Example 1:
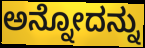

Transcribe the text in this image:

ಅನ್ನೋದನ್ನು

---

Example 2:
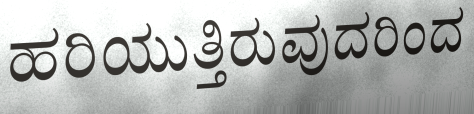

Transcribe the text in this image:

ಹರಿಯುತ್ತಿರುವುದರಿಂದ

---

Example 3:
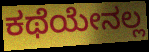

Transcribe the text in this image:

ಕಥೆಯೇನಲ್ಲ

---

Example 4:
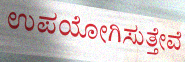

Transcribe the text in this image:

ಉಪಯೋಗಿಸುತ್ತೇವೆ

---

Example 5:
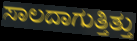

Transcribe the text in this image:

ಸಾಲದಾಗುತ್ತಿತ್ತು